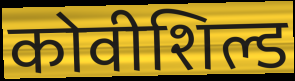
कोवीशिल्ड